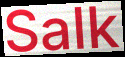
Salk